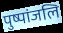
पुष्पांजलि